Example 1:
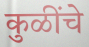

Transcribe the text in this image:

कुळींचे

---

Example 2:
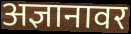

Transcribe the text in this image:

अज्ञानावर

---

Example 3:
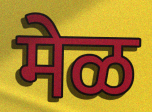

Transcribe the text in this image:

मेळ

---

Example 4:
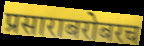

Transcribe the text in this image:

प्रसाराबरोबरच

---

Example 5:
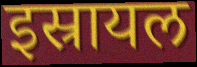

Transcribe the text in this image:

इस्रायल